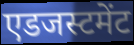
एडजस्टमेंट